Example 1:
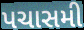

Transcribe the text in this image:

પચાસમી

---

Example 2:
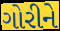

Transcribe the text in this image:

ગોરીને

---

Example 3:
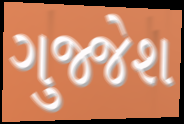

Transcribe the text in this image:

ગુજ્જેશ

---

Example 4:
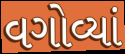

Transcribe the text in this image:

વગોવ્યાં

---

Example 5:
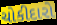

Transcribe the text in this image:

ચોકીદારો